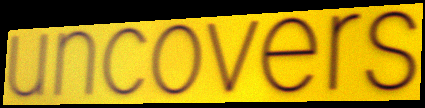
uncovers